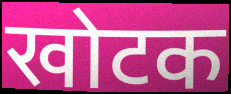
खोटक